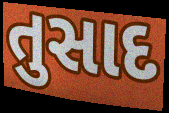
તુસાદ